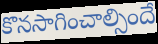
కొనసాగించాల్సిందే